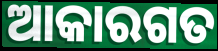
ଆକାରଗତ